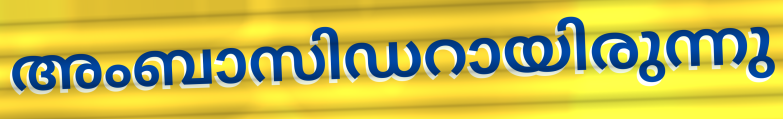
അംബാസിഡറായിരുന്നു